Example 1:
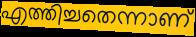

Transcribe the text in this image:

എത്തിച്ചതെന്നാണ്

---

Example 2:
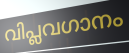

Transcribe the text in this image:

വിപ്ലവഗാനം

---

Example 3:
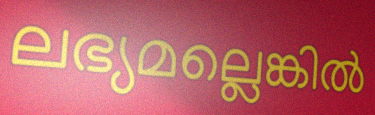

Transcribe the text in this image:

ലഭ്യമല്ലെങ്കിൽ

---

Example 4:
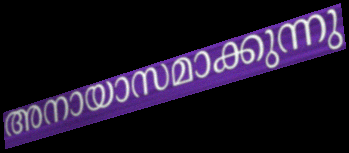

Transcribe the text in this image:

അനായാസമാക്കുന്നു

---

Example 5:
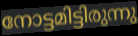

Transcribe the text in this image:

നോട്ടമിട്ടിരുന്നു